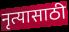
नृत्यासाठी